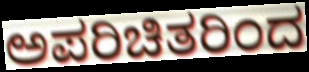
ಅಪರಿಚಿತರಿಂದ